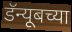
डॅन्यूबच्या